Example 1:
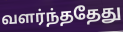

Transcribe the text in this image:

வளர்ந்ததேது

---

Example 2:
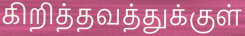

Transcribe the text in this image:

கிறித்தவத்துக்குள்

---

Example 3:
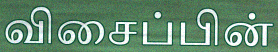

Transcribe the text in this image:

விசைப்பின்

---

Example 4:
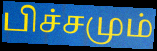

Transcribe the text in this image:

பிச்சமும்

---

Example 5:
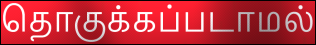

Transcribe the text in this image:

தொகுக்கப்படாமல்